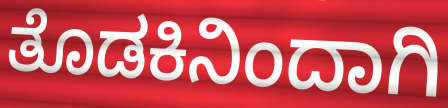
ತೊಡಕಿನಿಂದಾಗಿ